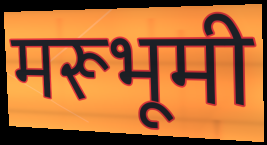
मरूभूमी